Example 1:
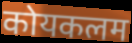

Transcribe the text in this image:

कोयकलम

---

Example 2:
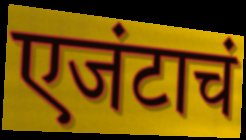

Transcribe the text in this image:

एजंटाचं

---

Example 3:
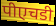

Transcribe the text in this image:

पीएचडी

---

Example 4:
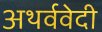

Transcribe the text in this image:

अथर्ववेदी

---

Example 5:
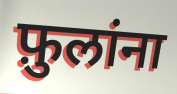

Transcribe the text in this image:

फ़ुलांना